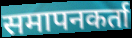
समापनकर्ता